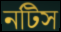
নটিস